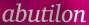
abutilon